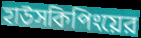
হাউসকিপিংয়ের